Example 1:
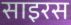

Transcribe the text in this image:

साइरस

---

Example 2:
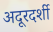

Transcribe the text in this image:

अदूरदर्शी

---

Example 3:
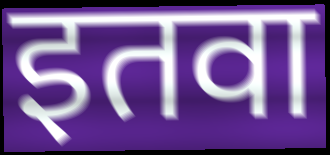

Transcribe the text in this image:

इतवा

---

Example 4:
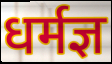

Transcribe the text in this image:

धर्मज्ञ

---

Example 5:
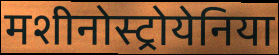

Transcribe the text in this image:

मशीनोस्ट्रोयेनिया